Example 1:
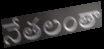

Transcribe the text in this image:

నేతలంతా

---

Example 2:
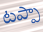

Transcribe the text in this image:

టప్పా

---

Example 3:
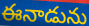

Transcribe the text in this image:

ఈనాడును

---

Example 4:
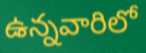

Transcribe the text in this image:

ఉన్నవారిలో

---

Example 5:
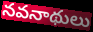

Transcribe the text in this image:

నవనాథులు